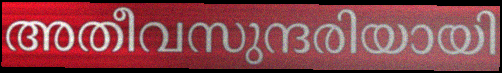
അതീവസുന്ദരിയായി